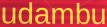
udambu